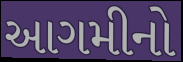
આગમીનો